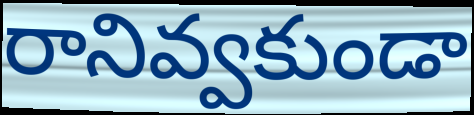
రానివ్వకుండా